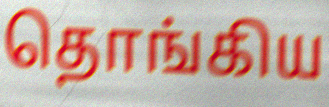
தொங்கிய